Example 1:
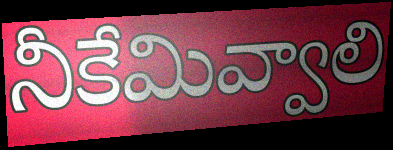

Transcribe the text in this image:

నీకేమివ్వాలి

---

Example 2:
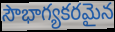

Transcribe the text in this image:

సౌభాగ్యకరమైన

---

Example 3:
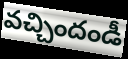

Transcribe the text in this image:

వచ్చిందండీ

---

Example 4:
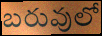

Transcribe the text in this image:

బరువులో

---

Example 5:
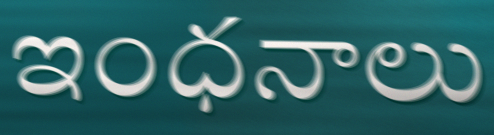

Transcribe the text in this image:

ఇంధనాలు